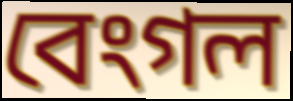
বেংগল